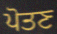
ਪੋਤਣ